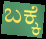
ಬಕ್ಕೆ